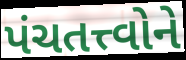
પંચતત્ત્વોને